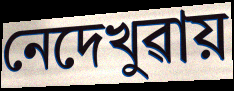
নেদেখুৱায়